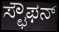
ಸ್ಟೌಫನ್